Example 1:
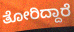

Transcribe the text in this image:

ತೋರಿದ್ದಾರೆ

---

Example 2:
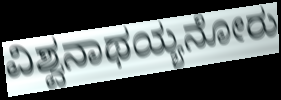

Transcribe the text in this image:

ವಿಶ್ವನಾಥಯ್ಯನೋರು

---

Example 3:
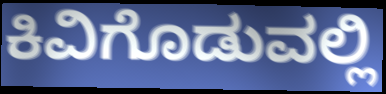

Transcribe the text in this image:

ಕಿವಿಗೊಡುವಲ್ಲಿ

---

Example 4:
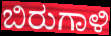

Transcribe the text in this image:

ಬಿರುಗಾಳಿ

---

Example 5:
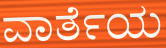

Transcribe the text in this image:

ವಾರ್ತೆಯ